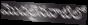
మొదలైనవాటిలో